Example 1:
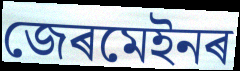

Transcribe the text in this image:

জেৰমেইনৰ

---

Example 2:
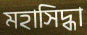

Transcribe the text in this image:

মহাসিদ্ধা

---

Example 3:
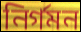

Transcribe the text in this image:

নিৰ্গমন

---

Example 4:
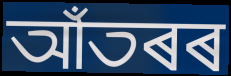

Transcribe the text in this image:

আঁতৰৰ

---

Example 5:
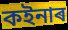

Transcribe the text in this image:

কইনাৰ